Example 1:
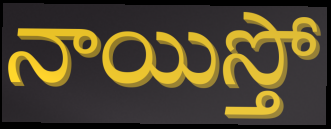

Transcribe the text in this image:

నాయిస్తో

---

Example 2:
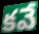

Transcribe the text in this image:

కవే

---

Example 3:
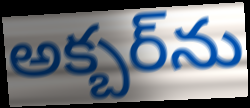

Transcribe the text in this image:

అక్బర్‌ను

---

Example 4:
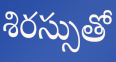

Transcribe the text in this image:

శిరస్సుతో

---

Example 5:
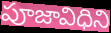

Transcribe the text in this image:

పూజావిధిని